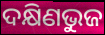
ଦକ୍ଷିଣଭୁଜ